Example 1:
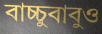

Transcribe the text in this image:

বাচ্চুবাবুও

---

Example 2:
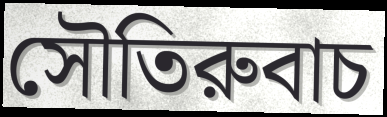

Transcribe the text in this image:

সৌতিরুবাচ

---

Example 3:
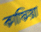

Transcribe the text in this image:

কাফিয়া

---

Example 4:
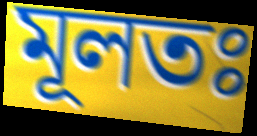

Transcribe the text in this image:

মূলতঃ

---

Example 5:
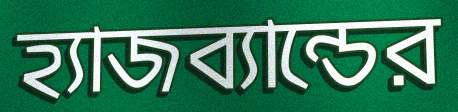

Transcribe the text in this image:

হ্যাজব্যান্ডের